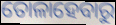
ତୋଳାହେବାରୁ